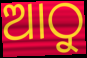
ଆଠୁ